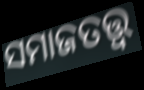
ସମାଜତତ୍ତ୍ୱ